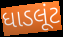
ધાડલૂંટ